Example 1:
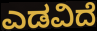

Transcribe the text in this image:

ಎಡವಿದೆ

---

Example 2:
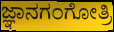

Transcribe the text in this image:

ಜ್ಞಾನಗಂಗೋತ್ರಿ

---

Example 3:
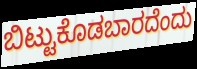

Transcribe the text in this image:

ಬಿಟ್ಟುಕೊಡಬಾರದೆಂದು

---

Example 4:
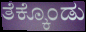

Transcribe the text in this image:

ತೆಕ್ಕೊಂಡು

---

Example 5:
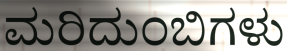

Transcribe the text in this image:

ಮರಿದುಂಬಿಗಳು